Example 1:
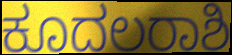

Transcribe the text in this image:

ಕೂದಲರಾಶಿ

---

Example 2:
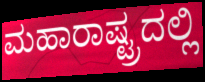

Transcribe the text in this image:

ಮಹಾರಾಷ್ಟ್ರದಲ್ಲಿ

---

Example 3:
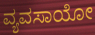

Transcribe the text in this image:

ವ್ಯವಸಾಯೋ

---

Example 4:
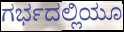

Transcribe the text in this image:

ಗರ್ಭದಲ್ಲಿಯೂ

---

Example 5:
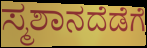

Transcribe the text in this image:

ಸ್ಮಶಾನದೆಡೆಗೆ